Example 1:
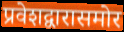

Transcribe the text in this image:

प्रवेशद्वारासमोर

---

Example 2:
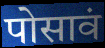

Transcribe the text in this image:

पोसावं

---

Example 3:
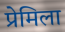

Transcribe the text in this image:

प्रेमिला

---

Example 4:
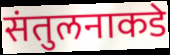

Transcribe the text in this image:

संतुलनाकडे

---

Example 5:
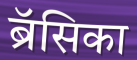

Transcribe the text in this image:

ब्रॅसिका